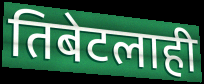
तिबेटलाही